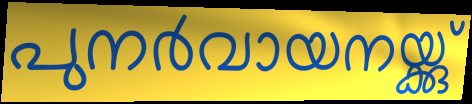
പുനർവായനയ്ക്കു്